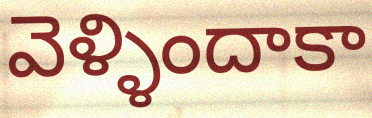
వెళ్ళిందాకా